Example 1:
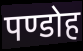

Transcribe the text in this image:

पण्डोह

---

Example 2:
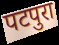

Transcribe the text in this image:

पटपुरा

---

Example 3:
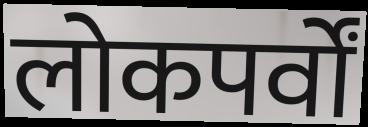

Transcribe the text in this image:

लोकपर्वों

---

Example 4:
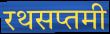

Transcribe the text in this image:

रथसप्तमी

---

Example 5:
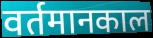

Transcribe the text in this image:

वर्तमानकाल